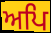
ਅਪਿ